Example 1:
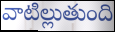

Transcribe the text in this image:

వాటిల్లుతుంది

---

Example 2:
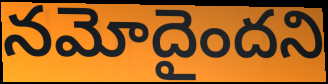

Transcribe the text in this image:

నమోదైందని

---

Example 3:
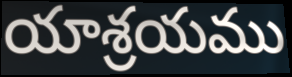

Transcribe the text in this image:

యాశ్రయము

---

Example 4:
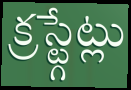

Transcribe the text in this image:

క్రస్ట్గేట్లు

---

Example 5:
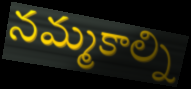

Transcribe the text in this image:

నమ్మకాల్ని